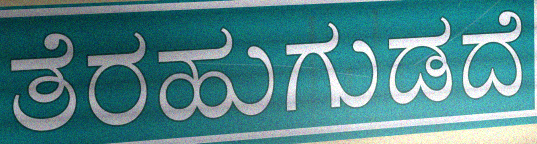
ತೆರಹುಗುಡದೆ